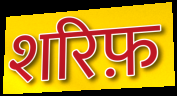
शरिफ़